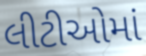
લીટીઓમાં